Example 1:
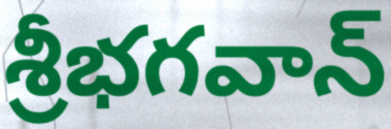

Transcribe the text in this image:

శ్రీభగవాన్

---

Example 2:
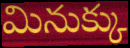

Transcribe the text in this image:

మినుక్కు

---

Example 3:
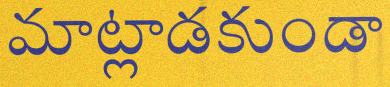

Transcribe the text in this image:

మాట్లాడకుండా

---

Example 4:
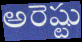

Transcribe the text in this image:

అరెష్టు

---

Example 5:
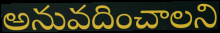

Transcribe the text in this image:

అనువదించాలని